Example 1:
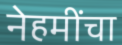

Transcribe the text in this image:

नेहमींचा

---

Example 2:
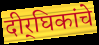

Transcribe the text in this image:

दीर्घिकांचे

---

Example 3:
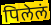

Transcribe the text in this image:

पिलेलं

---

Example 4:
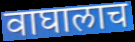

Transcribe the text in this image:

वाघालाच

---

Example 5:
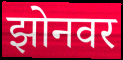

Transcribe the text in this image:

झोनवर